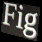
Fig